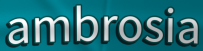
ambrosia